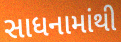
સાધનામાંથી